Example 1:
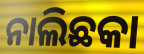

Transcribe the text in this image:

ନାଲିଛକା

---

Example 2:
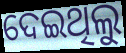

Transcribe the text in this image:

ଦେଇଥିଲୁ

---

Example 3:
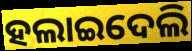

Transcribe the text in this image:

ହଲାଇଦେଲି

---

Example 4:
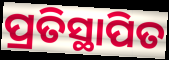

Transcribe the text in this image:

ପ୍ରତିସ୍ଥାପିତ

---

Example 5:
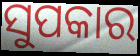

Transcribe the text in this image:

ସୁପକାର